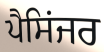
ਪੈਸਿਂਜਰ